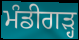
ਮੰਡੀਗੜ੍ਹ